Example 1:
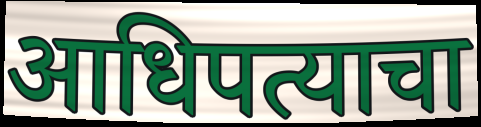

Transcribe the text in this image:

आधिपत्याचा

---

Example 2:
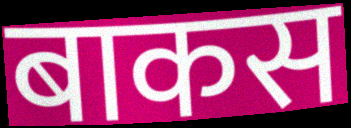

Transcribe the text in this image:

बाकस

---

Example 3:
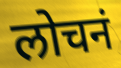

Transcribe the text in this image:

लोचनं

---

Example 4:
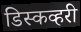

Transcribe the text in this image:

डिस्कव्हरी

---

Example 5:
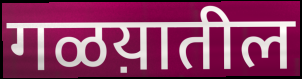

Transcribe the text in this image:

गळय़ातील